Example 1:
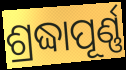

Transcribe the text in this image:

ଶ୍ରଦ୍ଧାପୂର୍ଣ୍ଣ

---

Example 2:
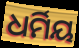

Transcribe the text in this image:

ଧର୍ମିୟ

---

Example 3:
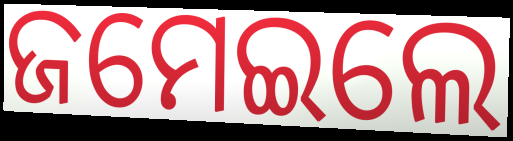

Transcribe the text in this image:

ଜମେଇଲେ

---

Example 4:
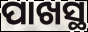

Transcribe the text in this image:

ପାଖସ୍ଥ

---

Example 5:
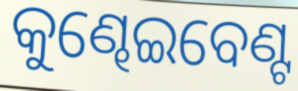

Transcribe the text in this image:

କୁଣ୍ଢେଇବେଣ୍ଟ